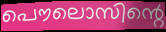
പൌലൊസിന്റെ